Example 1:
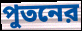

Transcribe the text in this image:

পুতনের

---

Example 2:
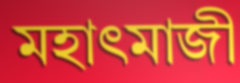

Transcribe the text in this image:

মহাৎমাজী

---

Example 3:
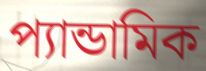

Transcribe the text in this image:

প্যান্ডামিক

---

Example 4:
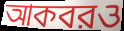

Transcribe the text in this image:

আকবরও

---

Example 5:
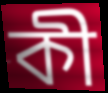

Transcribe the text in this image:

কী